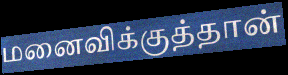
மனைவிக்குத்தான்